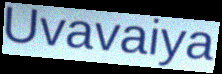
Uvavaiya